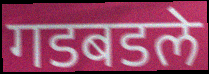
गडबडले